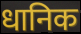
धानिक